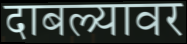
दाबल्यावर